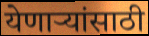
येणाऱ्यांसाठी